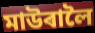
মাউৰালৈ